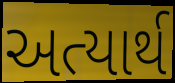
અત્યાર્થ